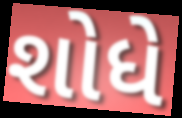
શોધે